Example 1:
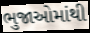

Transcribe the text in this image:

ભુજાઓમાંથી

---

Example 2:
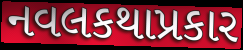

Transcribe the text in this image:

નવલકથાપ્રકાર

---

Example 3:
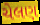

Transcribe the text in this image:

ચેલણ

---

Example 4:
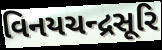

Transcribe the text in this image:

વિનયચન્દ્રસૂરિ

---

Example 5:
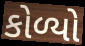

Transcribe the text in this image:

કોળ્યો